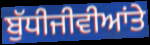
ਬੁੱਧੀਜੀਵੀਆਂਤੇ